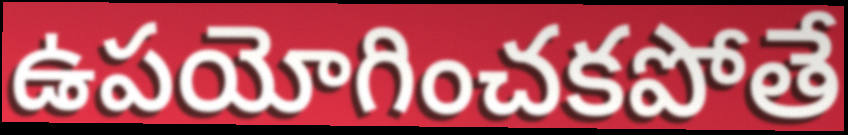
ఉపయోగించకపోతే